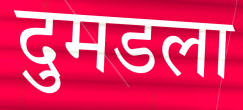
दुमडला